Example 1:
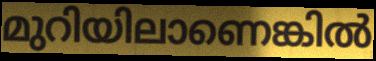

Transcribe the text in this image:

മുറിയിലാണെങ്കിൽ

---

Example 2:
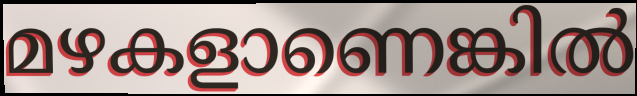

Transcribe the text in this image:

മഴകളാണെങ്കിൽ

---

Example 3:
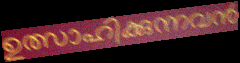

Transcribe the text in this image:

ഉത്സാഹിക്കുന്നവൻ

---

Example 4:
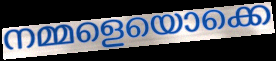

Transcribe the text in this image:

നമ്മളെയൊക്കെ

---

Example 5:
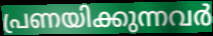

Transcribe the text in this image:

പ്രണയിക്കുന്നവർ